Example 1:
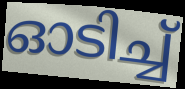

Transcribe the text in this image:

ഓടിച്ച്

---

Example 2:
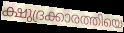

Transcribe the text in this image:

ക്ഷുദ്രക്കാരത്തിയെ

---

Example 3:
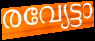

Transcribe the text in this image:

രവ്യേട്ടാ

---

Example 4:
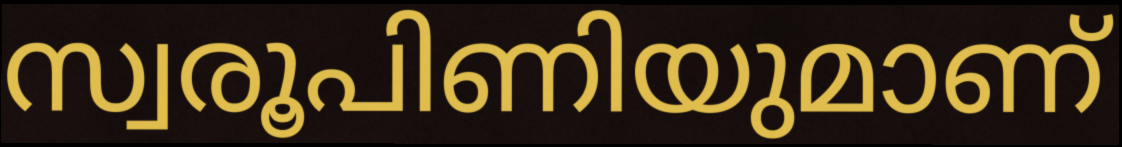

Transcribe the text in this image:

സ്വരൂപിണിയുമാണ്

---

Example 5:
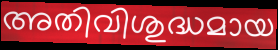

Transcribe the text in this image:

അതിവിശുദ്ധമായ